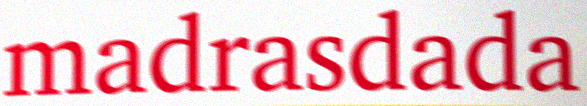
madrasdada